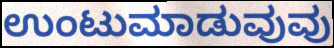
ಉಂಟುಮಾಡುವುವು